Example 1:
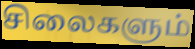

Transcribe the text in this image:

சிலைகளும்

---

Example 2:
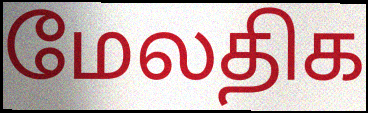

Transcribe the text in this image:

மேலதிக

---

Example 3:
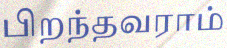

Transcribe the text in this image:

பிறந்தவராம்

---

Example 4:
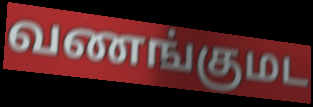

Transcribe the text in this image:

வணங்குமட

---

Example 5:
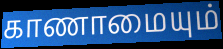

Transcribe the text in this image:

காணாமையும்